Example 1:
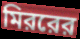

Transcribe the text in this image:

মিররের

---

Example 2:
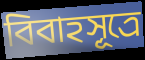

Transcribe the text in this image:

বিবাহসূত্রে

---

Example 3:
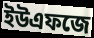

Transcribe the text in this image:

ইউএফজে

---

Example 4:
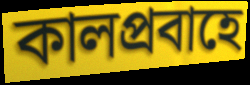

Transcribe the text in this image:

কালপ্রবাহে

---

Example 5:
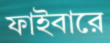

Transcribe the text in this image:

ফাইবারে